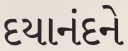
દયાનંદને